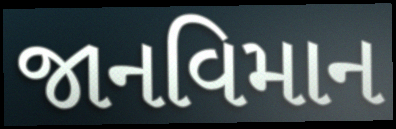
જાનવિમાન